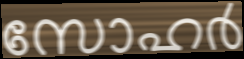
സോഹർ